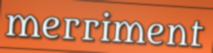
merriment